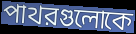
পাথরগুলোকে